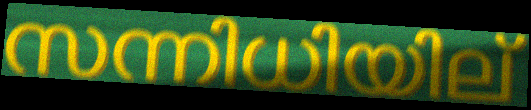
സന്നിധിയില്